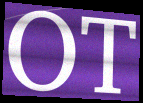
OT